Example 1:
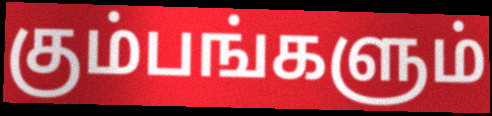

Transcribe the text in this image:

கும்பங்களும்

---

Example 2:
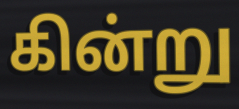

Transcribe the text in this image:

கின்று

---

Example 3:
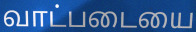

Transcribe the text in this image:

வாட்படையை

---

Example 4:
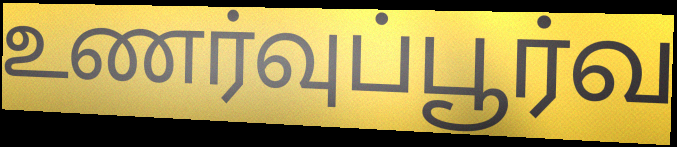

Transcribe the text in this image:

உணர்வுப்பூர்வ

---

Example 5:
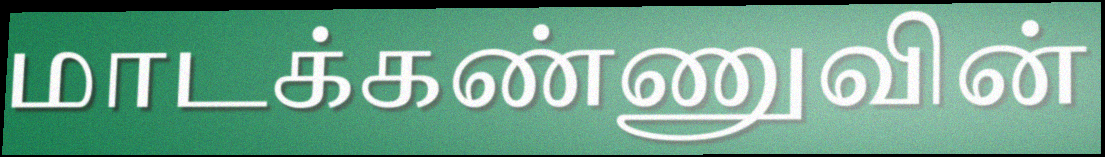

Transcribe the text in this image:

மாடக்கண்ணுவின்